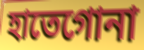
হাতেগোনা